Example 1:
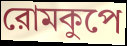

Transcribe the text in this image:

রোমকুপে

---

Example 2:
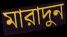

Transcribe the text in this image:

মারাদুন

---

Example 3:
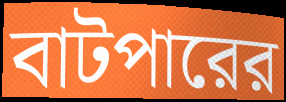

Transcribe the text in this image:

বাটপারের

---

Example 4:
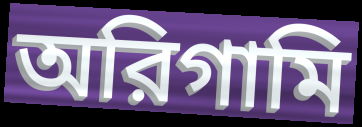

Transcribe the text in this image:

অরিগামি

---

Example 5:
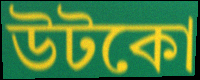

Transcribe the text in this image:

উটকো